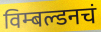
विम्बल्डनचं